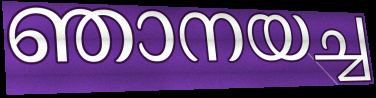
ഞാനയച്ച